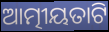
ଆତ୍ମୀୟତାଟି